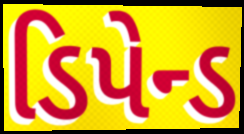
ડિપેન્ડ